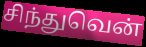
சிந்துவென்